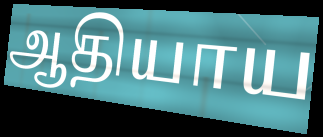
ஆதியாய